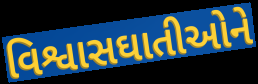
વિશ્વાસઘાતીઓને